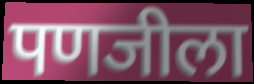
पणजीला